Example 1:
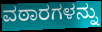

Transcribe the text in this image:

ವಠಾರಗಳನ್ನು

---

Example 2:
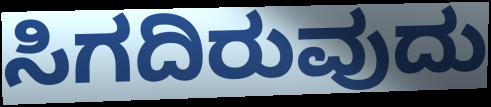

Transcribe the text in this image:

ಸಿಗದಿರುವುದು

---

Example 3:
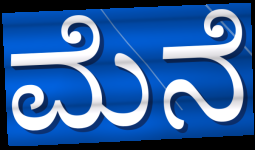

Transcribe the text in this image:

ಮೆನೆ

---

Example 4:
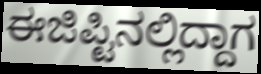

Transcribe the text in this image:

ಈಜಿಪ್ಟಿನಲ್ಲಿದ್ದಾಗ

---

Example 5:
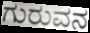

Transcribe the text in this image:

ಗುರುವನ